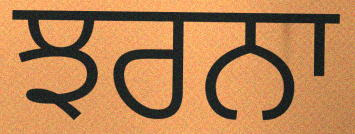
ਝਰਨਾ